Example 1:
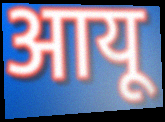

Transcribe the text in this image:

आयू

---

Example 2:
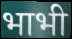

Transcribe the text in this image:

भाभी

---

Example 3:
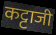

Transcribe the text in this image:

कट्टाजी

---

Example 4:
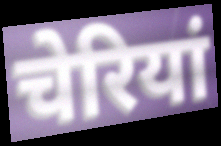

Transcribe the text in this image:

चेरियां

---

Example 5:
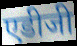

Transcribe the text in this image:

एडीजी